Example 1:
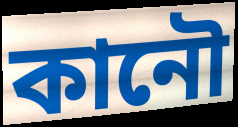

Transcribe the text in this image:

কানৌ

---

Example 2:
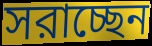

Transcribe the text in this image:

সরাচ্ছেন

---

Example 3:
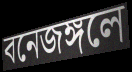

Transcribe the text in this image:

বনেজঙ্গলে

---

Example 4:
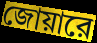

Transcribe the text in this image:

জোয়ারে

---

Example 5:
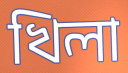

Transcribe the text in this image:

খিলা